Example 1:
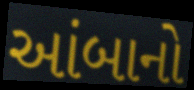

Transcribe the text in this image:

આંબાનો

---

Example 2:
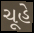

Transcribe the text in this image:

ચૂહે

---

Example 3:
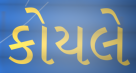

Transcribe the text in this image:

કોયલે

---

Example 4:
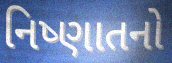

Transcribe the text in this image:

નિષ્ણાતનો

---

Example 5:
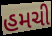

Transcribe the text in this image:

હમચી